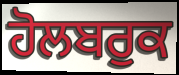
ਹੋਲਬਰੁਕ